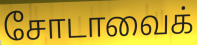
சோடாவைக்